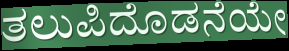
ತಲುಪಿದೊಡನೆಯೇ